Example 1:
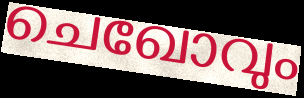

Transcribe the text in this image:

ചെഖോവും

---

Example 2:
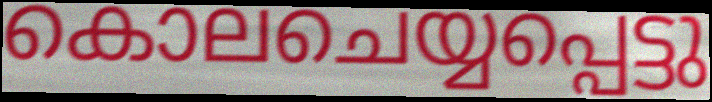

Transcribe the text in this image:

കൊലചെയ്യപ്പെട്ടു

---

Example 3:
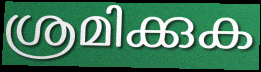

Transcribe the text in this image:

ശ്രമിക്കുക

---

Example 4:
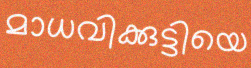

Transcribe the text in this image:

മാധവിക്കുട്ടിയെ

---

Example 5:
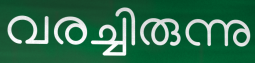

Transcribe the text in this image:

വരച്ചിരുന്നു